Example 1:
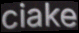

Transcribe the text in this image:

ciake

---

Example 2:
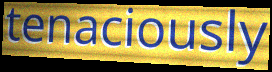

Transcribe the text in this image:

tenaciously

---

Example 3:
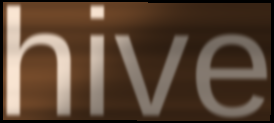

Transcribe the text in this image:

hive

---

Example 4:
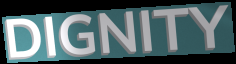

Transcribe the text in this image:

DIGNITY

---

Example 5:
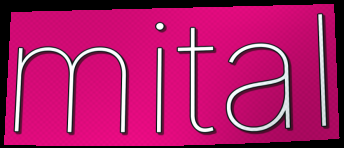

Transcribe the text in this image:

mital